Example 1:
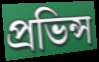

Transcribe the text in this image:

প্ৰভিন্স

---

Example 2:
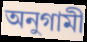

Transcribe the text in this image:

অনুগামী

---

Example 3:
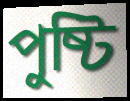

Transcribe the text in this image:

পুষ্টি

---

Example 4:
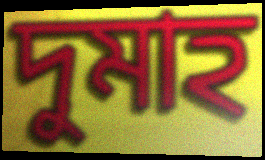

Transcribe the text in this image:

দুমাহ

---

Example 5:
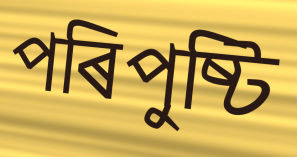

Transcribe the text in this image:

পৰিপুষ্টি